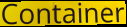
Container